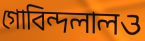
গোবিন্দলালও